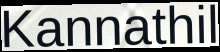
Kannathil